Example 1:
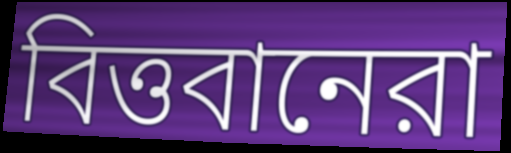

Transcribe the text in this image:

বিত্তবানেরা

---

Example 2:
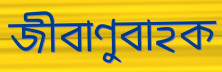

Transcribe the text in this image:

জীবাণুবাহক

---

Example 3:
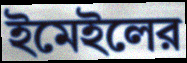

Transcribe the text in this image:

ইমেইলের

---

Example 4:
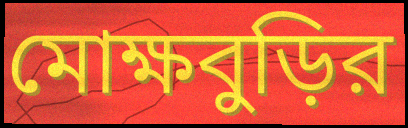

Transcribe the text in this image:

মোক্ষবুড়ির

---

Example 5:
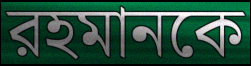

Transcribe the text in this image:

রহমানকে